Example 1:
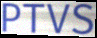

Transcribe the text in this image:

PTVS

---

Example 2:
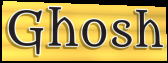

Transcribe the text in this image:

Ghosh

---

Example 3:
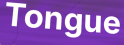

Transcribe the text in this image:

Tongue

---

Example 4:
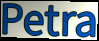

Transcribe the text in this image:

Petra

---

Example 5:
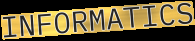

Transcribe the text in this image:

INFORMATICS